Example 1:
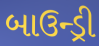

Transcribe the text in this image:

બાઉન્ડ્રી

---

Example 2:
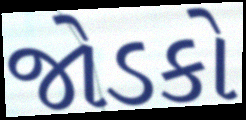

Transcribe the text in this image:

જોડકો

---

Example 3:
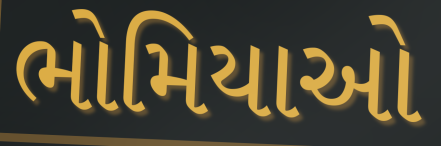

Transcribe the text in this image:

ભોમિયાઓ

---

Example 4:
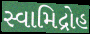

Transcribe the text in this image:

સ્વામિદ્રોહ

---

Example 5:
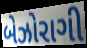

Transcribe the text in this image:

બેઝોરાગી